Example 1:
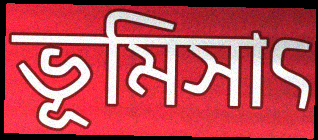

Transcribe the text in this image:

ভূমিসাৎ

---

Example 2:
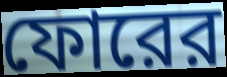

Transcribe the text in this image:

ফোরের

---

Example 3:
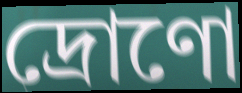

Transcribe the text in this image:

দ্রোণো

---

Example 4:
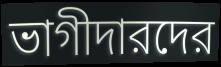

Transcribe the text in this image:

ভাগীদারদের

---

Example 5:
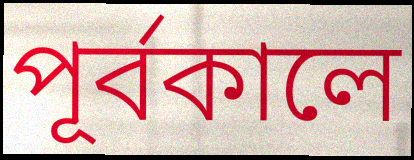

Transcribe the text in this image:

পূর্বকালে